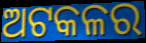
ଅଟକଳର